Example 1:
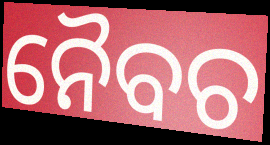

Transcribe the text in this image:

ନୈବଚ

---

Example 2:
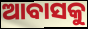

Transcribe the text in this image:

ଆବାସକୁ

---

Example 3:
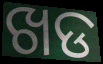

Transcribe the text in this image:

ଖଡ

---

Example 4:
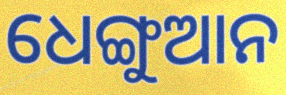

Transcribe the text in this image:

ଧେଙ୍ଗୁଆନ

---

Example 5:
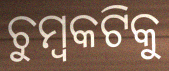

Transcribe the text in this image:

ଚୁମ୍ବକଟିକୁ